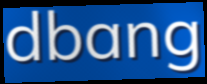
dbang